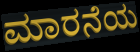
ಮಾರನೆಯ